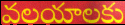
వలయాలకు